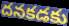
దనకడకు